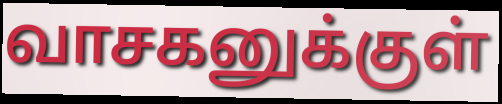
வாசகனுக்குள்